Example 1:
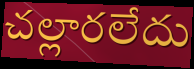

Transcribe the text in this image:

చల్లారలేదు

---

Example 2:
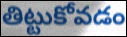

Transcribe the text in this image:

తిట్టుకోవడం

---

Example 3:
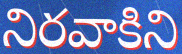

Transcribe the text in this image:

నిరవాకిని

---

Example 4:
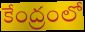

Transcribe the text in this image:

కేంద్రంలో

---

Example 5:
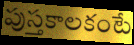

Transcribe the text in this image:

పుస్తకాలకంటే